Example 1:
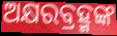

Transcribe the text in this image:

ଅକ୍ଷରବ୍ରହ୍ମଙ୍କ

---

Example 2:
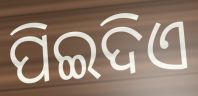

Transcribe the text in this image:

ପିଇଦିଏ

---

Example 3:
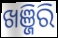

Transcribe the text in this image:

ଖଞ୍ଜିରି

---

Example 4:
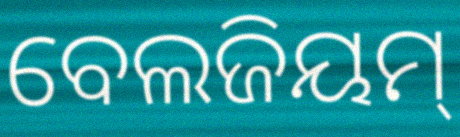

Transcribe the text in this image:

ବେଲଜିୟମ୍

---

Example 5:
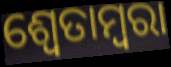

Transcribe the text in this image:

ଶ୍ୱେତାମ୍ବରା